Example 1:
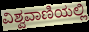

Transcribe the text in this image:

ವಿಶ್ವವಾಣಿಯಲ್ಲಿ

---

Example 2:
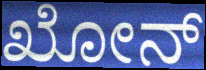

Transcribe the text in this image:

ಖೋನ್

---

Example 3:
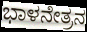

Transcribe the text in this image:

ಭಾಳನೇತ್ರನ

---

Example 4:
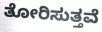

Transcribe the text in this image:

ತೋರಿಸುತ್ತವೆ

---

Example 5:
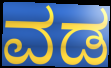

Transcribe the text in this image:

ವಡ